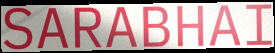
SARABHAI